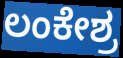
ಲಂಕೇಶ್ರ